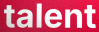
talent